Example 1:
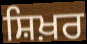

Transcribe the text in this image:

ਸ਼ਿਖ਼ਰ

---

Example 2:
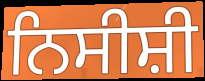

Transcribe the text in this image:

ਨਿਸੀਸ਼ੀ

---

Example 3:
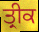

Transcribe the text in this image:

ਤ੍ਰੀਕ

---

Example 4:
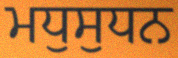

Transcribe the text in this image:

ਮਧੁਸੁਧਨ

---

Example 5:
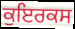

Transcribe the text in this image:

ਕੁਇਰਕਸ